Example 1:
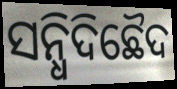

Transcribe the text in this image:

ସନ୍ଧିଦିଛୈଦ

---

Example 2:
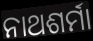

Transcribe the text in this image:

ନାଥଶର୍ମା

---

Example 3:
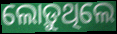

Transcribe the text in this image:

ଲୋଡ଼ୁଥିଲେ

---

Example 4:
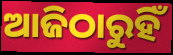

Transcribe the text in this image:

ଆଜିଠାରୁହିଁ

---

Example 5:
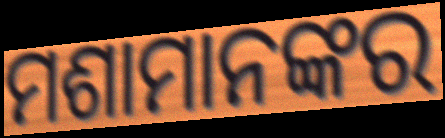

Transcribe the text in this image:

ମଶାମାନଙ୍କର